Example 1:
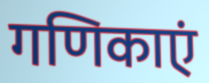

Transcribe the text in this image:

गणिकाएं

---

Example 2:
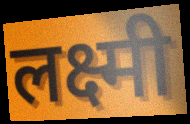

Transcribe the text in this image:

लक्ष्मी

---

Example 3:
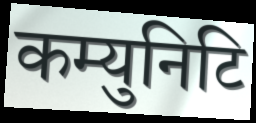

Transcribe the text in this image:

कम्युनिटि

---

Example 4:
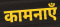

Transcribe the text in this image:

कामनाएँ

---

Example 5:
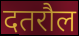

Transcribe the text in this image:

दतरौल